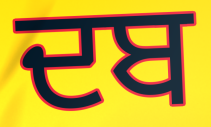
ਦਬ